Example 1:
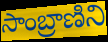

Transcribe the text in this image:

సాంబ్రాణిని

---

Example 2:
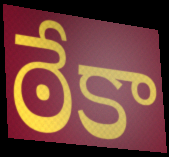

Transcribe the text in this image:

ఠేకా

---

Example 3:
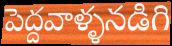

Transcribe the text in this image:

పెద్దవాళ్ళనడిగి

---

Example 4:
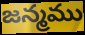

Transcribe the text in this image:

జన్మము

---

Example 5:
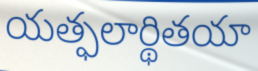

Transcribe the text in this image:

యత్ఫలార్థితయా